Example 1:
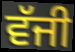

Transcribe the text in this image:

ਵੱਜੀ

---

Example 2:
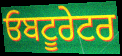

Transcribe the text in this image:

ਓਬਟੂਰੇਟਰ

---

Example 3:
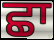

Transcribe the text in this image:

ਛਾ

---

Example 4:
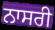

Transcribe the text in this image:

ਨਾਸਰੀ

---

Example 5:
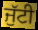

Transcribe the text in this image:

ਜੁੱਟੀ